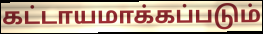
கட்டாயமாக்கப்படும்